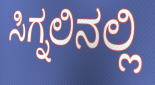
ಸಿಗ್ನಲಿನಲ್ಲಿ